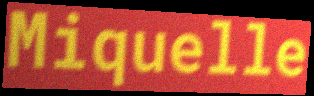
Miquelle